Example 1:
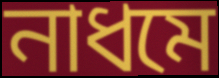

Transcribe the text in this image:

নাধমে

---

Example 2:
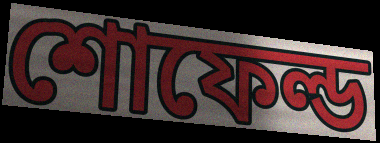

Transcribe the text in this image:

শোফেল্ড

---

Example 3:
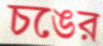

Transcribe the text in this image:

চঙের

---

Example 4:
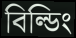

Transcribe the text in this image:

বিল্ডিং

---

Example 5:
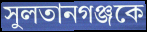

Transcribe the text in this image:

সুলতানগঞ্জকে